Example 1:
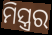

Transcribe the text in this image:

ମିସ୍ତ୍ରର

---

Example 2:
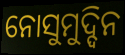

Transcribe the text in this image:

ନୋସୁମୁଦ୍ଦିନ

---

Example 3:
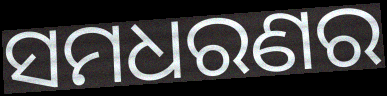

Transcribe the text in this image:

ସମଧରଣର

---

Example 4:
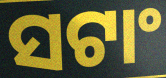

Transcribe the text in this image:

ସଟାଂ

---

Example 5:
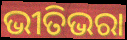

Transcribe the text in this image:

ଭୀତିଭରା